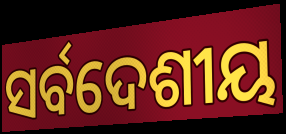
ସର୍ବଦେଶୀୟ